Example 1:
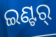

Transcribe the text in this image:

ଇଣ୍ଟର୍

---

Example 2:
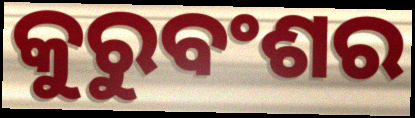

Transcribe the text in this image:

କୁରୁବଂଶର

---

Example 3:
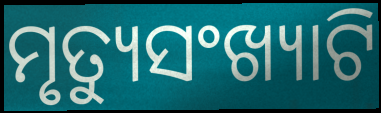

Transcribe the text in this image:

ମୃତ୍ୟୁସଂଖ୍ୟାଟି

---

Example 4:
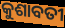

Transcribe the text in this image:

କୁଶାବତୀ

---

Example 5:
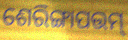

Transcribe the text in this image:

ଶେରିଙ୍ଗାପତ୍ତମ୍